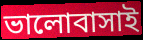
ভালোবাসাই